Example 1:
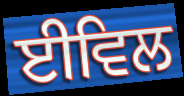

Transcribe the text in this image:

ਈਵਿਲ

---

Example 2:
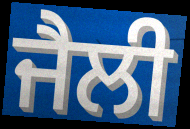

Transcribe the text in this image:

ਜੈਲੀ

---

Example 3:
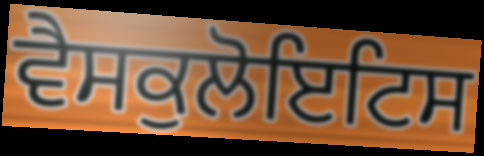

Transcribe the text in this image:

ਵੈਸਕੁਲੋਇਟਿਸ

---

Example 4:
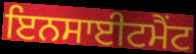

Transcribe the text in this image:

ਇਨਸਾਈਟਮੈਂਟ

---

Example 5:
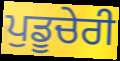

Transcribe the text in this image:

ਪੁਡੂਚੇਰੀ